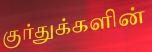
குர்துக்களின்